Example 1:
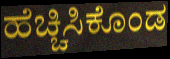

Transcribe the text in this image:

ಹೆಚ್ಚಿಸಿಕೊಂಡ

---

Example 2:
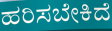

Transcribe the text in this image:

ಹರಿಸಬೇಕಿದೆ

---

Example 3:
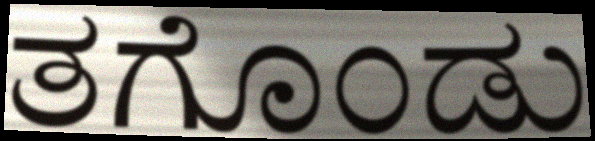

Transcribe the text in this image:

ತಗೊಂಡು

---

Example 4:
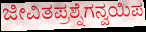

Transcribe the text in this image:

ಜೀವಿತಪ್ರಶ್ನೆಗನ್ವಯಿಪ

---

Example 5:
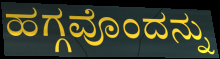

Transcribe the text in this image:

ಹಗ್ಗವೊಂದನ್ನು